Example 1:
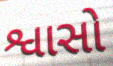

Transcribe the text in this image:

શ્વાસો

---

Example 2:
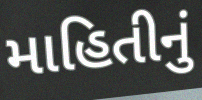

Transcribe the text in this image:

માહિતીનું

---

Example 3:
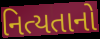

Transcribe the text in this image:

નિત્યતાનો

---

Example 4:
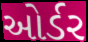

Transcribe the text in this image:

ઓર્ડર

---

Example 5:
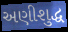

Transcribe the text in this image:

અણીશુદ્ધ